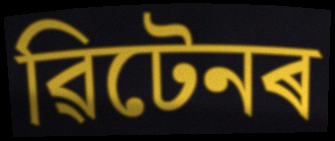
ৱিটেনৰ